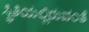
ಸ್ಥಿತಿಯಲ್ಲಿರುವಂತೆ